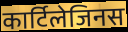
कार्टिलेजिनस